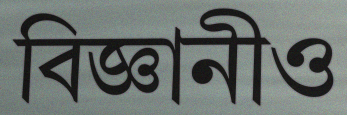
বিজ্ঞানীও